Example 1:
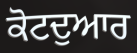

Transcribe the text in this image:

ਕੋਟਦੁਆਰ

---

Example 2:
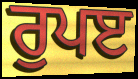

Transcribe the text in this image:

ਰੁਪੲ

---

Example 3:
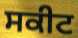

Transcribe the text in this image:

ਸਕੀਟ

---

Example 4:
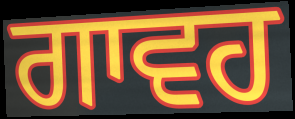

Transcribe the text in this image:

ਗਾਵਹ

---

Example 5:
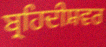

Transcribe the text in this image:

ਬ੍ਰਹਿਦੀਸ਼ਵਰ